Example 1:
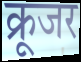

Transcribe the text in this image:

क्रूजर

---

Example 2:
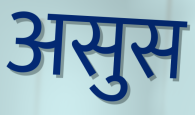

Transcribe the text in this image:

असुस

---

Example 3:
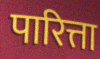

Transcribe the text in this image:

पारित्ता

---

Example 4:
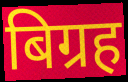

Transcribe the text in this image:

बिग्रह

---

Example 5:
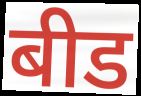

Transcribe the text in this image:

बीड